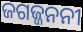
ଜଗଜ୍ଜନନୀ